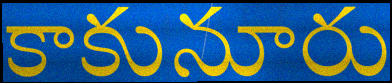
కాకునూరు